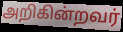
அறிகின்றவர்